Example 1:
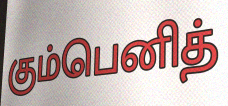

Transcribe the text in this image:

கும்பெனித்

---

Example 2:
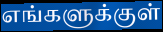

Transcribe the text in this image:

எங்களுக்குள்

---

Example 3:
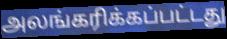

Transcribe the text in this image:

அலங்கரிக்கப்பட்டது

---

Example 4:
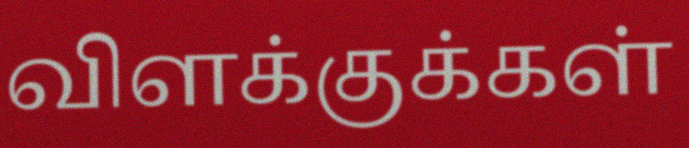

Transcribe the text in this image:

விளக்குக்கள்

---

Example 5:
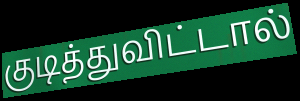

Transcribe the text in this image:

குடித்துவிட்டால்